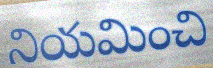
నియమించి